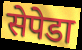
सेपेडा